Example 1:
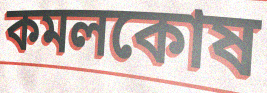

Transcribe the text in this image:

কমলকোষ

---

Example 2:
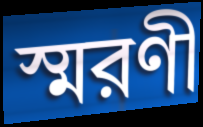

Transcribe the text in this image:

স্মরণী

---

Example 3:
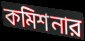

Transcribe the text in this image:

কমিশনার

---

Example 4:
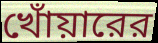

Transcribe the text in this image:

খোঁয়ারের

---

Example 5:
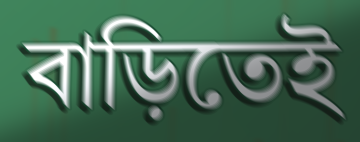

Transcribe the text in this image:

বাড়িতেই